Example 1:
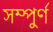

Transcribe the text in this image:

সম্পুৰ্ণ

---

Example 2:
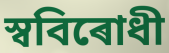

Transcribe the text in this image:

স্ববিৰোধী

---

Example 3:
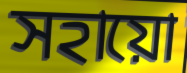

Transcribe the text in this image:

সহায়ো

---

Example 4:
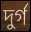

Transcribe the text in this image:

দুৰ্গ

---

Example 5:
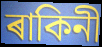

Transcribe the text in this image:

ৰাকিনী